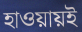
হাওয়ায়ই